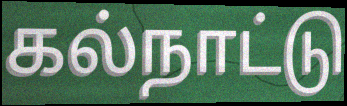
கல்நாட்டு